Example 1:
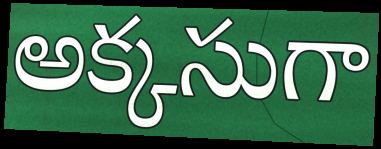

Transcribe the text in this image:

అక్కసుగా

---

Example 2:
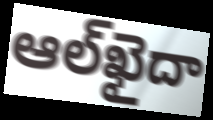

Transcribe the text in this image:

ఆల్‌ఖైదా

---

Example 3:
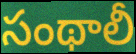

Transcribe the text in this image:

సంథాలీ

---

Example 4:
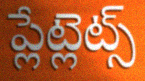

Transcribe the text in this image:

ప్లేట్లెట్స్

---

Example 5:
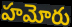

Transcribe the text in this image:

హమోరు